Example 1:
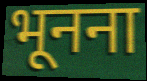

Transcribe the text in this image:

भूनना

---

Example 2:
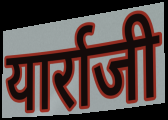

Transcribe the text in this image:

यार्राजी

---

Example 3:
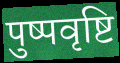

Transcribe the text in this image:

पुष्पवृष्टि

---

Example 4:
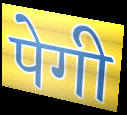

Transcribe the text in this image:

पेगी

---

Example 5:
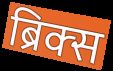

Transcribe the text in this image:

ब्रिक्‍स